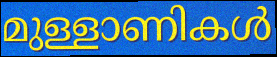
മുള്ളാണികൾ